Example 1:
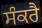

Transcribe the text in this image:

ਸੰਕਰੈ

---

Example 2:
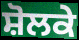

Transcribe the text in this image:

ਸ਼ੋਲਕੇ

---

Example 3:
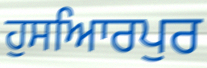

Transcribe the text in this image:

ਹੁਸਆਿਰਪੁਰ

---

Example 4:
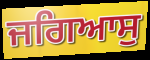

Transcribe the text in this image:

ਜਗਿਆਸੁ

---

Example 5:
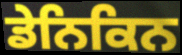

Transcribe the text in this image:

ਡੇਨਿਕਿਨ